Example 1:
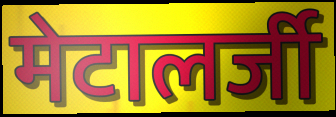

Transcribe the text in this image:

मेटालर्जी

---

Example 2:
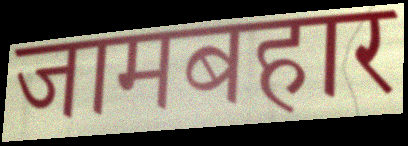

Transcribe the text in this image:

जामबहार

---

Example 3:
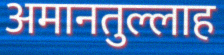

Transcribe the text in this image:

अमानतुल्लाह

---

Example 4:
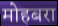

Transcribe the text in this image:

मोहबरा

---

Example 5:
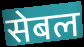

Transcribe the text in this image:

सेबल